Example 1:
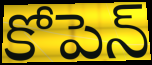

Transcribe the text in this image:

కోపెన్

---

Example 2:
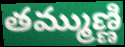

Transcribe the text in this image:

తమ్ముణ్ణి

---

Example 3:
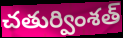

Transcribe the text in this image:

చతుర్వింశత్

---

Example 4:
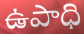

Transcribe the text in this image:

ఉపాధి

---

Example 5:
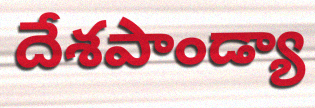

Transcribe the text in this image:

దేశపాండ్యా